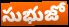
సుభుజో